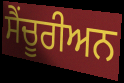
ਸੈਂਚੂਰੀਅਨ